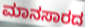
ಮಾನಸಾರದ